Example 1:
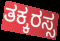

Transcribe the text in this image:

ತಕ್ಕರಸ್ಸ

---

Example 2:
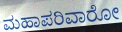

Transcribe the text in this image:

ಮಹಾಪರಿವಾರೋ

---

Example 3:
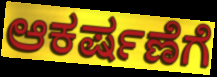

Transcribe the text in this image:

ಆಕರ್ಷಣೆಗೆ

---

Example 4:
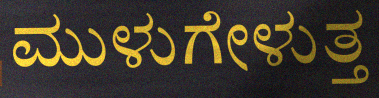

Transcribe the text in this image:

ಮುಳುಗೇಳುತ್ತ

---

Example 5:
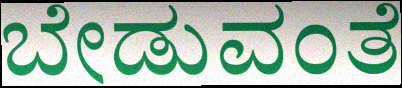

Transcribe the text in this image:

ಬೇಡುವಂತೆ